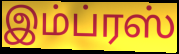
இம்ப்ரஸ்